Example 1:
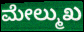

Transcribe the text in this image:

ಮೇಲ್ಮುಖ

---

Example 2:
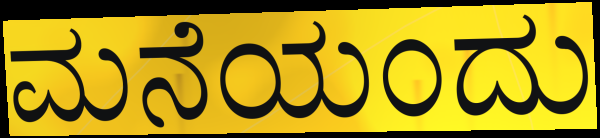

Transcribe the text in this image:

ಮನೆಯಂದು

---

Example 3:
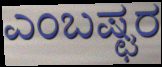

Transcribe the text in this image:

ಎಂಬಷ್ಟರ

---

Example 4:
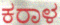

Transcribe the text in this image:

ಕರಾಳ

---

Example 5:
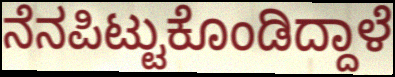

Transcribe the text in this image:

ನೆನಪಿಟ್ಟುಕೊಂಡಿದ್ದಾಳೆ